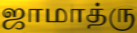
ஜாமாத்ரு